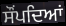
ਸੌਂਪਦਿਆਂ